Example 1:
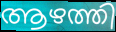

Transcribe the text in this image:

ആഴത്തി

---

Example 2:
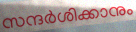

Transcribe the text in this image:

സന്ദർശിക്കാനും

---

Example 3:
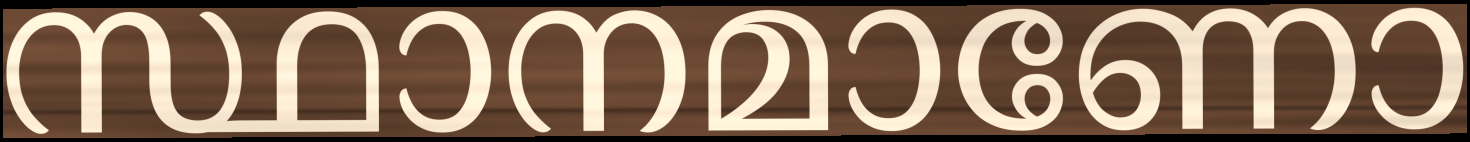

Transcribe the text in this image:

സ്ഥാനമാണോ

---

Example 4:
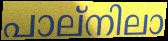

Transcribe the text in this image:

പാല്നിലാ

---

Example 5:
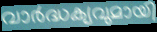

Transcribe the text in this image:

വാർദ്ധക്യവുമായി